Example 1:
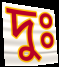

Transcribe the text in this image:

দুঃ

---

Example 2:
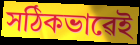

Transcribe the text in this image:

সঠিকভাৱেই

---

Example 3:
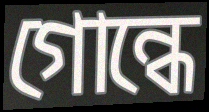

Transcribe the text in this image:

গোন্ধে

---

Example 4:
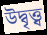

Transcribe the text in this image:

উদ্বৃত্ত্ব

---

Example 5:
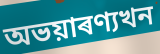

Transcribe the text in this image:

অভয়াৰণ্যখন